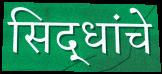
सिद्धांचे